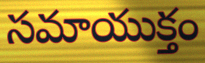
సమాయుక్తం